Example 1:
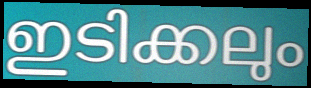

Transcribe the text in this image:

ഇടിക്കലും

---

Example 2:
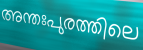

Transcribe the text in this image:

അന്തഃപുരത്തിലെ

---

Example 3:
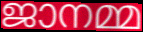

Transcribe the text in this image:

ജാനമ്മ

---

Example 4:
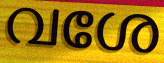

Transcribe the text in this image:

വശേ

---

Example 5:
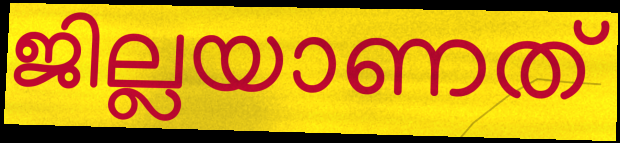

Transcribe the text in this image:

ജില്ലയാണത്